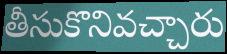
తీసుకొనివచ్చారు